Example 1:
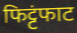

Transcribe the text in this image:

फिट्टंफाट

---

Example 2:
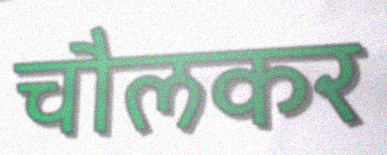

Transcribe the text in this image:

चौलकर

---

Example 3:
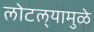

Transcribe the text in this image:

लोटल्यामुळे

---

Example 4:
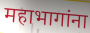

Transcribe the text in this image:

महाभागांना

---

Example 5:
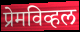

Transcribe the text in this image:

प्रेमविव्हल